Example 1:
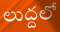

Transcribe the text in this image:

లుద్దలో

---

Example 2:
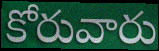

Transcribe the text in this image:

కోరువారు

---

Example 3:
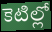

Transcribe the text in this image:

కెటిల్లో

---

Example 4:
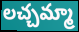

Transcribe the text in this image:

లచ్చమ్మా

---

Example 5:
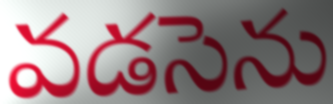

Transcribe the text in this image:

వడసెను